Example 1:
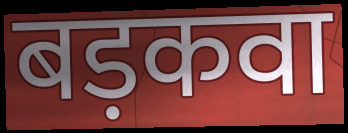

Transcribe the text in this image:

बड़कवा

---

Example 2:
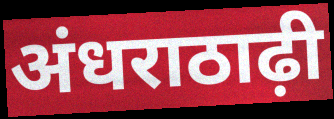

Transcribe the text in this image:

अंधराठाढ़ी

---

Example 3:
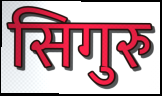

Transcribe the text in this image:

सिगुरु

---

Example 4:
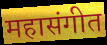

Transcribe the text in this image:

महासंगीत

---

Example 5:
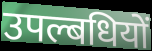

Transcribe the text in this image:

उपल्बधियों